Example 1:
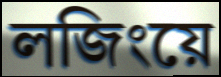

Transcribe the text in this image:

লজিংয়ে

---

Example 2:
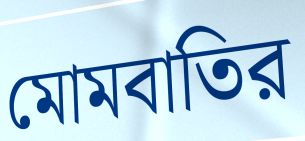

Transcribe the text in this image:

মোমবাতির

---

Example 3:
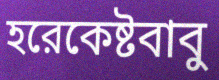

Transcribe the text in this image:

হরেকেষ্টবাবু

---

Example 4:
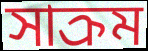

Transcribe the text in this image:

সাক্রম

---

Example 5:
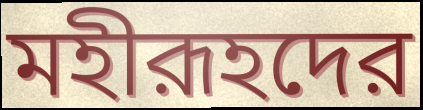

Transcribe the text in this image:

মহীরূহদের